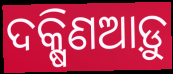
ଦକ୍ଷିଣଆଡ଼ୁ